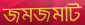
জমজমাট